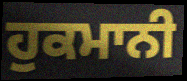
ਹੁਕਮਾਨੀ